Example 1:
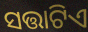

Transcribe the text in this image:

ସତ୍ତାଟିଏ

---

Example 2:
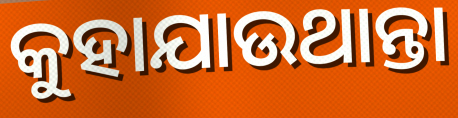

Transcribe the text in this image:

କୁହାଯାଉଥାନ୍ତା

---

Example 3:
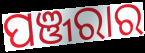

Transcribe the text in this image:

ପଞ୍ଜରାର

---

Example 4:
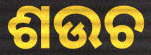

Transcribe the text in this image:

ଶଉଚ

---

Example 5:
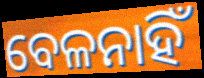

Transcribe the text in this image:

ବେଳନାହିଁ